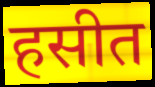
हसीत